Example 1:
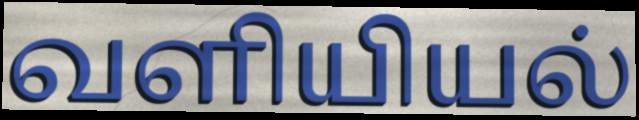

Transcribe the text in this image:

வளியியல்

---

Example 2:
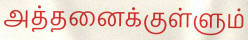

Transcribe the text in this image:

அத்தனைக்குள்ளும்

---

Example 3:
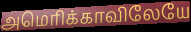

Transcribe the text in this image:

அமெரிக்காவிலேயே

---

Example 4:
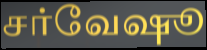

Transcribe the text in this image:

சர்வேஷூ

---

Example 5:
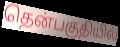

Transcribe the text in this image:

தென்பகுதியில்